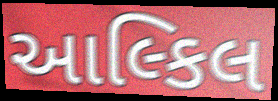
આલ્કિલ